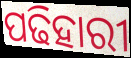
ପଢିହାରୀ